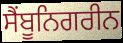
ਸੈਂਬੂਨਿਗਰੀਨ